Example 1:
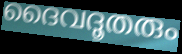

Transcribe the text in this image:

ദൈവദൂതരും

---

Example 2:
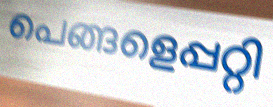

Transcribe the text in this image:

പെങ്ങളെപ്പറ്റി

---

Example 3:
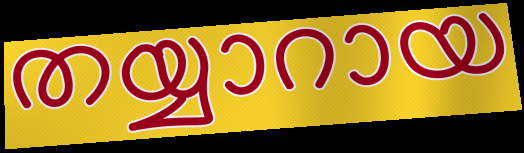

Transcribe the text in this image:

തയ്യാറായ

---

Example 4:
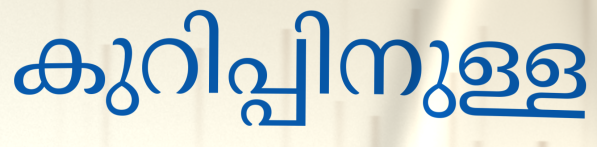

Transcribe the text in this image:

കുറിപ്പിനുള്ള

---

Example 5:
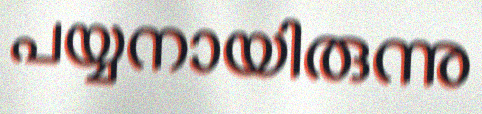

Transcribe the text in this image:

പയ്യനായിരുന്നു